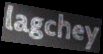
lagchey